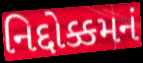
નિદ્દોક્કમનં